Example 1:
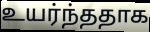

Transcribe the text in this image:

உயர்ந்ததாக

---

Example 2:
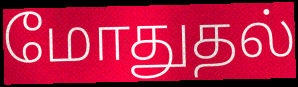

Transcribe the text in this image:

மோதுதல்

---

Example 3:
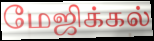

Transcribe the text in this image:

மேஜிக்கல்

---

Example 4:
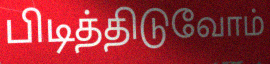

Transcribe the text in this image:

பிடித்திடுவோம்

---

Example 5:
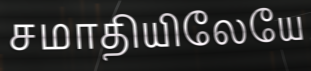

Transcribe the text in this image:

சமாதியிலேயே